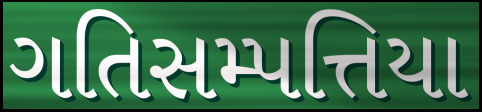
ગતિસમ્પત્તિયા